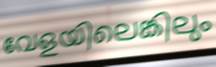
വേളയിലെങ്കിലും